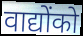
वाद्योंको